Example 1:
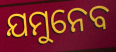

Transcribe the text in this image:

ଯମୁନେବ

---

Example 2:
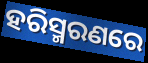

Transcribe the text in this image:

ହରିସ୍ମରଣରେ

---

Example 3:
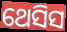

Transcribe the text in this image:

ଥେସିସ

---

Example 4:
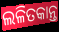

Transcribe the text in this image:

ଲଳିତକାନ୍ତ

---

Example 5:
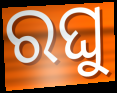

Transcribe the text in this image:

ରଘୁ